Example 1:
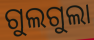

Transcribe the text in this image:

ଗୁଲଗୁଲା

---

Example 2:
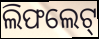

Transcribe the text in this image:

ଲିଫଲେଟ୍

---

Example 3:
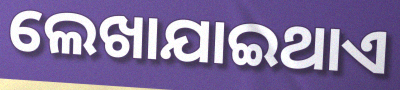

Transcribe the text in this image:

ଲେଖାଯାଇଥାଏ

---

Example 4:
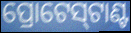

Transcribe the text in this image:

ପ୍ରୋଟେସ୍‌ଟାଣ୍ଟ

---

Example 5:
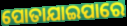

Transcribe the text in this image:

ପୋତାଯାଇପାରେ